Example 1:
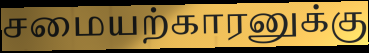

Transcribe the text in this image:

சமையற்காரனுக்கு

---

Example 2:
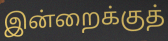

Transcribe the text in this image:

இன்றைக்குத்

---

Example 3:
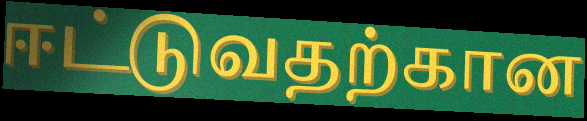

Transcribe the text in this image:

ஈட்டுவதற்கான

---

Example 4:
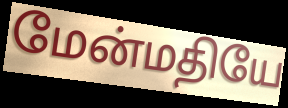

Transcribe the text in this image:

மேன்மதியே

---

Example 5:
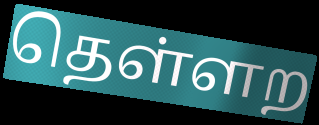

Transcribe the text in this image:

தெள்ளற